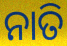
ନାତି